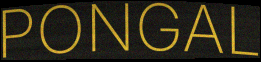
PONGAL